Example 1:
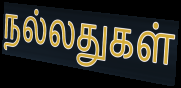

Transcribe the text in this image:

நல்லதுகள்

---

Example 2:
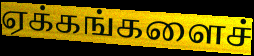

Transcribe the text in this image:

ஏக்கங்களைச்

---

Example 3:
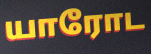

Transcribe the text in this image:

யாரோட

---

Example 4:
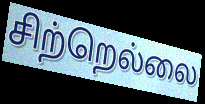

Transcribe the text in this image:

சிற்றெல்லை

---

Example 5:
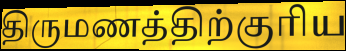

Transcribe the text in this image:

திருமணத்திற்குரிய